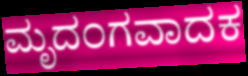
ಮೃದಂಗವಾದಕ